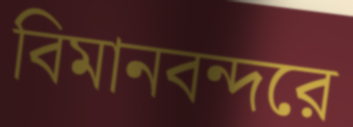
বিমানবন্দরে